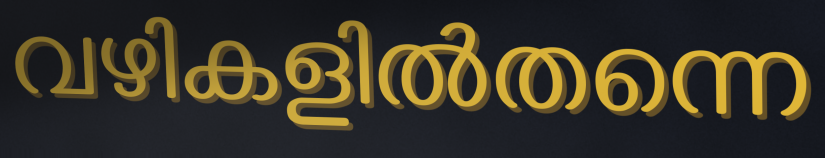
വഴികളിൽതന്നെ